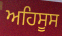
ਅਹਿਸੂਸ